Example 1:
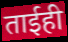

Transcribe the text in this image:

ताईही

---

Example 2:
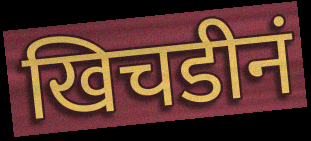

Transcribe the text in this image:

खिचडीनं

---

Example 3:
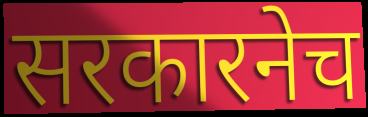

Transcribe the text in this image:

सरकारनेच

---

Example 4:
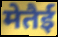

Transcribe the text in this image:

मेतैई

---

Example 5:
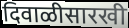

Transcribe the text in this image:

दिवाळीसारखी